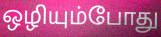
ஒழியும்போது